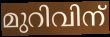
മുറിവിന്